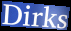
Dirks